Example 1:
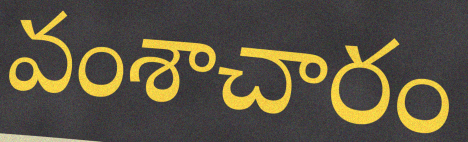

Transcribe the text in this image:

వంశాచారం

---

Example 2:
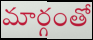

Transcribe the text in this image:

మార్గంతో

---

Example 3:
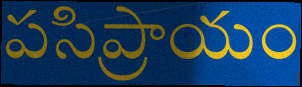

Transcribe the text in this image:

పసిప్రాయం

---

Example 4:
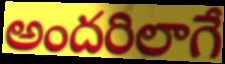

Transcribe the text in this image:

అందరిలాగే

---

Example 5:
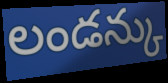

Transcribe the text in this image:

లండన్కు